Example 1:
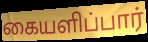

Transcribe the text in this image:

கையளிப்பார்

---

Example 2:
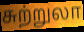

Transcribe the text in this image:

சுற்றுலா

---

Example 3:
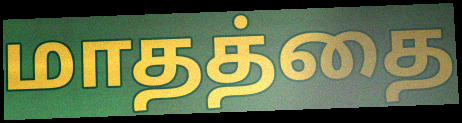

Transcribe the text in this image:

மாதத்தை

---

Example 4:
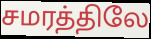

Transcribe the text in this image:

சமரத்திலே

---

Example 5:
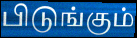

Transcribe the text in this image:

பிடுங்கும்